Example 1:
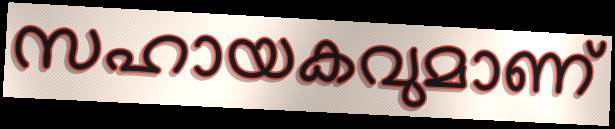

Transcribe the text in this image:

സഹായകവുമാണ്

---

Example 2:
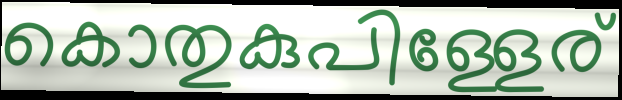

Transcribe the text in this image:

കൊതുകുപിള്ളേര്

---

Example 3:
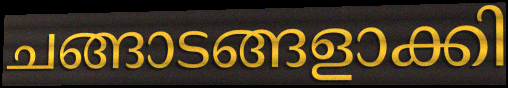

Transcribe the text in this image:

ചങ്ങാടങ്ങളാക്കി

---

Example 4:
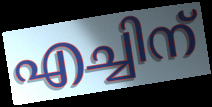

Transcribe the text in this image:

എച്ചിന്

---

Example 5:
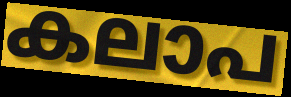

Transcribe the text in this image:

കലാപ